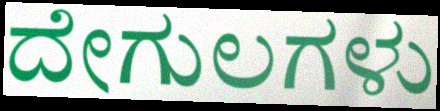
ದೇಗುಲಗಳು